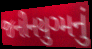
જનીનયુગ્મનું